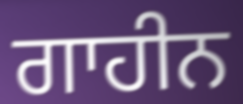
ਗਾਹੀਨ